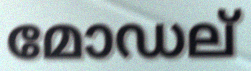
മോഡല്